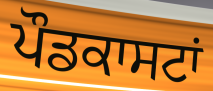
ਪੌਡਕਾਸਟਾਂ